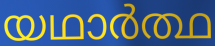
യഥാർത്ഥ